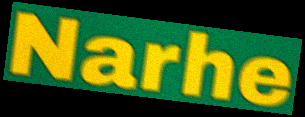
Narhe